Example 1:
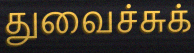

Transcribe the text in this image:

துவைச்சுக்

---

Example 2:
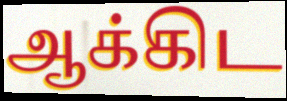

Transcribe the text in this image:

ஆக்கிட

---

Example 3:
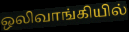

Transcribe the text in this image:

ஒலிவாங்கியில்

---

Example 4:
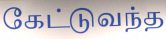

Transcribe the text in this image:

கேட்டுவந்த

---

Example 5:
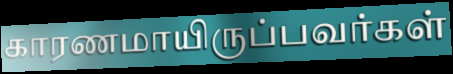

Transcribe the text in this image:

காரணமாயிருப்பவர்கள்